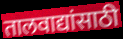
तालवाद्यांसाठी